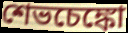
শেভচেঙ্কো